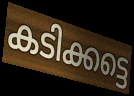
കടിക്കട്ടെ